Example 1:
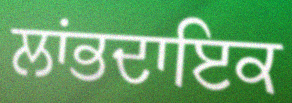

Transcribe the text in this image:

ਲਾਂਭਦਾਇਕ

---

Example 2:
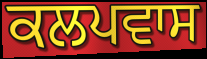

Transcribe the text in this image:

ਕਲਪਵਾਸ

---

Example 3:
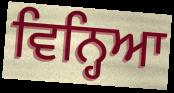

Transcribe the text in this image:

ਵਿਨ੍ਹਿਆ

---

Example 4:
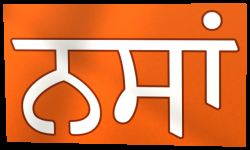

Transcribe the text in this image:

ਨਸਾਂ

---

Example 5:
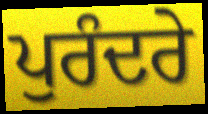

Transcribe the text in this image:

ਪੁਰੰਦਰੇ